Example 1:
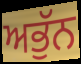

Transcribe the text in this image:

ਅਭੁੱਨ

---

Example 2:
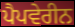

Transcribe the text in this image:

ਪੈਪਵੇਰੀਨ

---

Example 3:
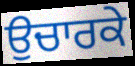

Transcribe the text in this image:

ਉਚਾਰਕੇ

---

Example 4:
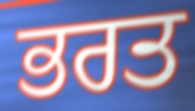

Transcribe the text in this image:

ਭਰਤ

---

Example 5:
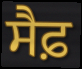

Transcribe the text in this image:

ਸੈਫ਼